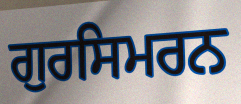
ਗੁਰਸਿਮਰਨ